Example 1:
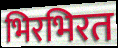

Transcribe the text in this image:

भिरभिरत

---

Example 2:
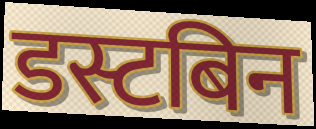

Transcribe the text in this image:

डस्टबिन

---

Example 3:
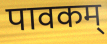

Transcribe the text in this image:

पावकम्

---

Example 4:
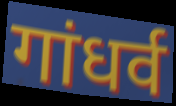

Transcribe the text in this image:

गांधर्व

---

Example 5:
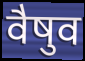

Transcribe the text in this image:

वैषुव